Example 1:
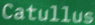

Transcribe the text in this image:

Catullus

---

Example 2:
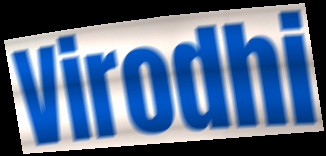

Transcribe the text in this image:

Virodhi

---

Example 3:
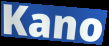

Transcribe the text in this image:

Kano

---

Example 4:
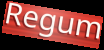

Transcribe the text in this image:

Regum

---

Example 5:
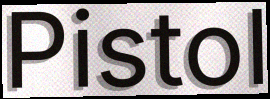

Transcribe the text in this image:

Pistol